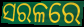
ସରଳରେ